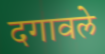
दगावले